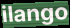
ilango